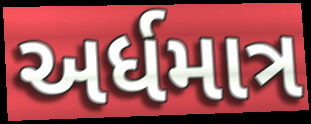
અર્ધમાત્ર